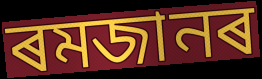
ৰমজানৰ